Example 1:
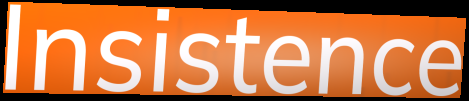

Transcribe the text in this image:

Insistence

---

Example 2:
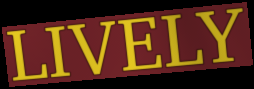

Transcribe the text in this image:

LIVELY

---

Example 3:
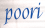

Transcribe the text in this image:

poori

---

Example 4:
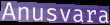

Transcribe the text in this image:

Anusvara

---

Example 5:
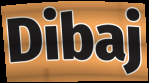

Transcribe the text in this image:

Dibaj